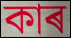
কাৰ